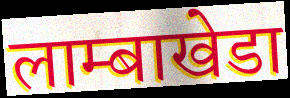
लाम्बाखेडा